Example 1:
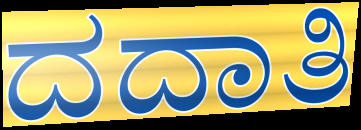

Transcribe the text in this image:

ದದಾತಿ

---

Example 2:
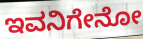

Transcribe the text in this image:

ಇವನಿಗೇನೋ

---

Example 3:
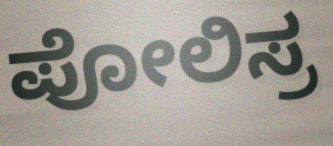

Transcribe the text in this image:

ಪೋಲಿಸ್ರ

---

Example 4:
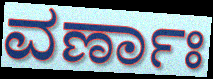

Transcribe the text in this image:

ವರ್ಣಾಃ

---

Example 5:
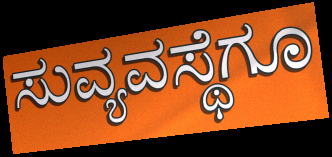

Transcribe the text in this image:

ಸುವ್ಯವಸ್ಥೆಗೂ